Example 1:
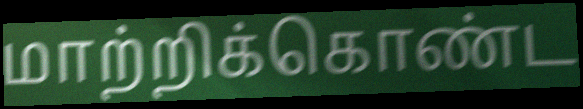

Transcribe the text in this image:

மாற்றிக்கொண்ட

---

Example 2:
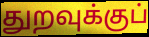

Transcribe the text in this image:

துறவுக்குப்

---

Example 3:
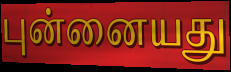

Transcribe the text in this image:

புன்னையது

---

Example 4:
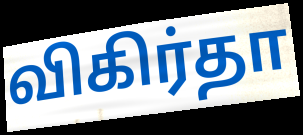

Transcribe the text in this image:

விகிர்தா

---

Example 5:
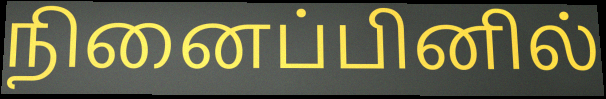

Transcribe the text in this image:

நினைப்பினில்